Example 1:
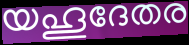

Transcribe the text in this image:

യഹൂദേതര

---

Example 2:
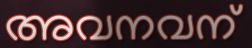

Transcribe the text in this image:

അവനവന്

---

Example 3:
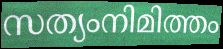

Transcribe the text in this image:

സത്യംനിമിത്തം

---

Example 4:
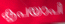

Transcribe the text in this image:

കൃപയാപി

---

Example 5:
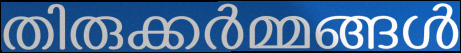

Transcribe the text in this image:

തിരുക്കർമ്മങ്ങൾ